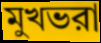
মুখভরা